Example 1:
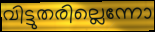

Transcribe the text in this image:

വിട്ടുതരില്ലെന്നോ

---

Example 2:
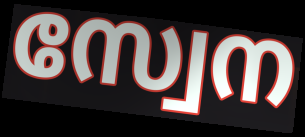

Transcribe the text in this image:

സ്വേന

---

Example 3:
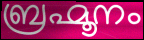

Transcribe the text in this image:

ബ്രഹ്മൂനം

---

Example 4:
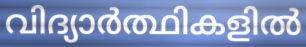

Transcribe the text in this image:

വിദ്യാർത്ഥികളിൽ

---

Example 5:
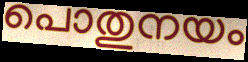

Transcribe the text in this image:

പൊതുനയം